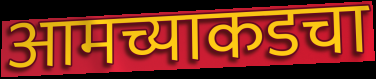
आमच्याकडचा